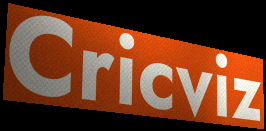
Cricviz